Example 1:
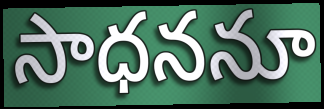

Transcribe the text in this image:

సాధననూ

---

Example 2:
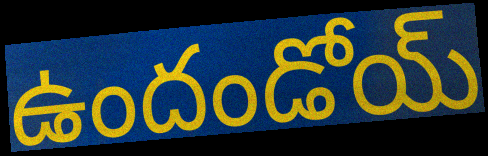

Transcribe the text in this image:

ఉందండోయ్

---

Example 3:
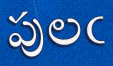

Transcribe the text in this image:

పులఁ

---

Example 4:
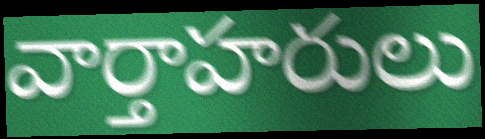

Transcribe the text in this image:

వార్తాహరులు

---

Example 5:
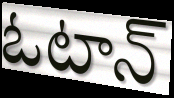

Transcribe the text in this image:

ఓటాన్